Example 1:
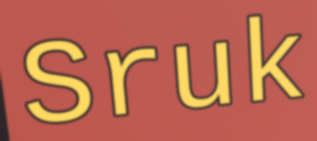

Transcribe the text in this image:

Sruk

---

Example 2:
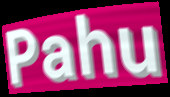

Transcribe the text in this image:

Pahu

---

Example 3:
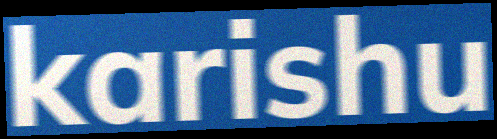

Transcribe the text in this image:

karishu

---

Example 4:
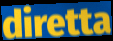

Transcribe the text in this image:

diretta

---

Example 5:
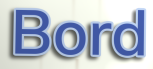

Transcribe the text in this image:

Bord